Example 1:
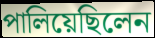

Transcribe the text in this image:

পালিয়েছিলেন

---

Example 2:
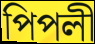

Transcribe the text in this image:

পিপলী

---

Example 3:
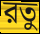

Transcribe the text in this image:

রতু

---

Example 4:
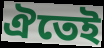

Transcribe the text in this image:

ঐতেই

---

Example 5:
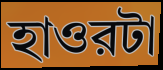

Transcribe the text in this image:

হাওরটা